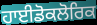
ਹਾਈਡੋਕਲੋਰਿਕ